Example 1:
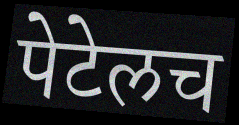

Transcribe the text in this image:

पेटेलच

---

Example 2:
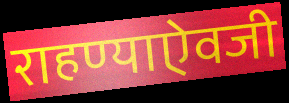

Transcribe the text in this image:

राहण्याऐवजी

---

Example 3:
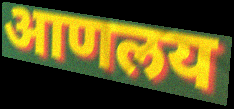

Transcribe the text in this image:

आणलय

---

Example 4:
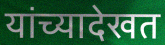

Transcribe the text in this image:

यांच्यादेखत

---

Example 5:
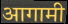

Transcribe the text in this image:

आगामी